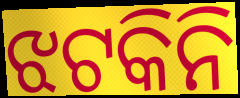
ଝଟକିନି